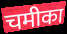
चमीका